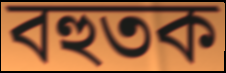
বহুতক